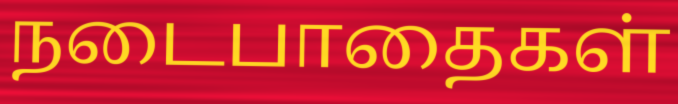
நடைபாதைகள்